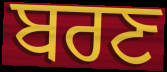
ਬਰਣ